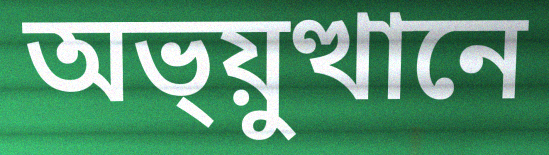
অভ্য়ুত্থানে